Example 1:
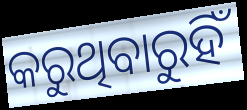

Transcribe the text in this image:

କରୁଥିବାରୁହିଁ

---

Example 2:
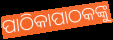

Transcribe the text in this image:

ପାଠିକାପାଠକଙ୍କୁ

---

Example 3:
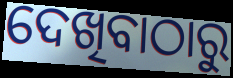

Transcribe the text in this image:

ଦେଖିବାଠାରୁ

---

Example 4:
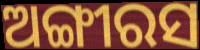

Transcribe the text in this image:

ଅଙ୍ଗୀରସ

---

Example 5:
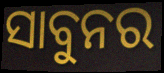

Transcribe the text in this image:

ସାବୁନର